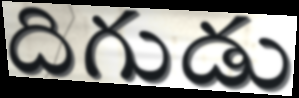
దిగుడు